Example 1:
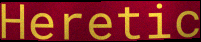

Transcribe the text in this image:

Heretic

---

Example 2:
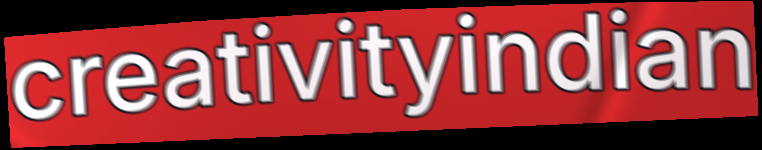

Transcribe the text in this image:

creativityindian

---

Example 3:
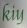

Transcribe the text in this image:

kiy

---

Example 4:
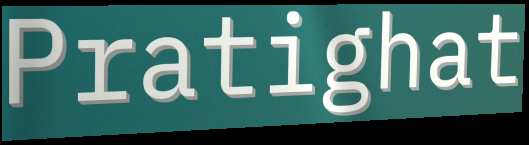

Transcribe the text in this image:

Pratighat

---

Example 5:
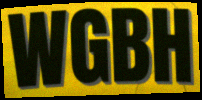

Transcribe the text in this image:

WGBH